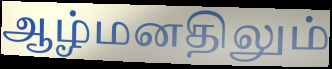
ஆழ்மனதிலும்